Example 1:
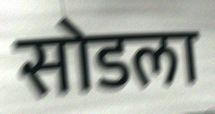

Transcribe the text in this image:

सोडला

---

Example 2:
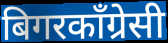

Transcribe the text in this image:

बिगरकाँग्रेसी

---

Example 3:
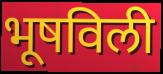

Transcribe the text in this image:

भूषविली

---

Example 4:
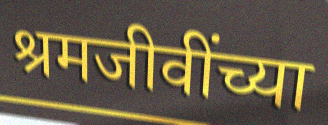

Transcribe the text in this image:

श्रमजीवींच्या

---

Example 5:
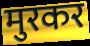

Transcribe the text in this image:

मुरकर